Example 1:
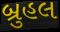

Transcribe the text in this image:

બ્રુહલ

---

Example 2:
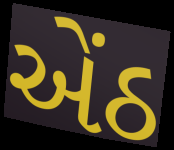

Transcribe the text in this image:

એંઠ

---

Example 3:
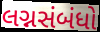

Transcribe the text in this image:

લગ્નસંબંધો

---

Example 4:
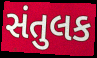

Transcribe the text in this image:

સંતુલક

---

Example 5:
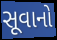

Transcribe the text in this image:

સૂવાનો